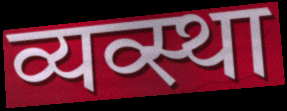
व्यव्स्था